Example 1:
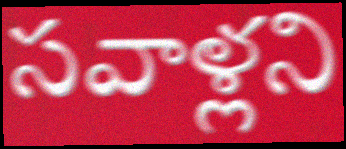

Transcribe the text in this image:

సవాళ్లని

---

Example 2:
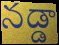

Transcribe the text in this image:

నడ్డా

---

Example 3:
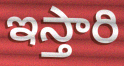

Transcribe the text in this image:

ఇస్తారి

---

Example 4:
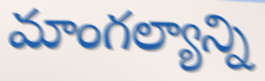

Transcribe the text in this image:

మాంగల్యాన్ని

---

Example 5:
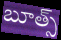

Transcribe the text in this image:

బూత్స్